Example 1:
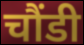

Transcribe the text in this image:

चौंडी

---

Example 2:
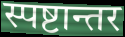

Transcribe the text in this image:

स्पष्टान्तर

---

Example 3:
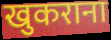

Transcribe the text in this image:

खुकराना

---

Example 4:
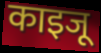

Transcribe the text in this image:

काइजू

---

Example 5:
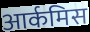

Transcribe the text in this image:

आर्कमिस